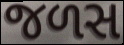
જળસ